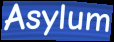
Asylum